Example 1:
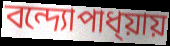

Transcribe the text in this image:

বন্দ্যোপাধ্য়ায়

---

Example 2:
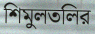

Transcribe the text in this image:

শিমুলতলির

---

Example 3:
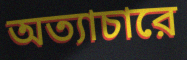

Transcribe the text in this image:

অত্যাচারে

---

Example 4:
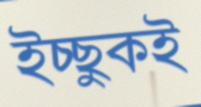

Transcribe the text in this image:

ইচ্ছুকই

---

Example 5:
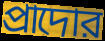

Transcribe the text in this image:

প্রাদোর